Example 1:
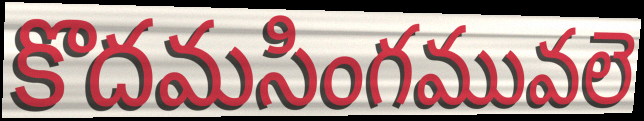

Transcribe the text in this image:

కొదమసింగమువలె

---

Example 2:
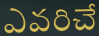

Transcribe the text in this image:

ఎవరిచే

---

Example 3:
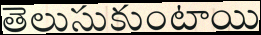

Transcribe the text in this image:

తెలుసుకుంటాయి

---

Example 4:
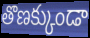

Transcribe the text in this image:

తొణక్కుండా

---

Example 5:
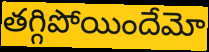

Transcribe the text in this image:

తగ్గిపోయిందేమో